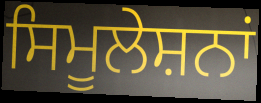
ਸਿਮੂਲੇਸ਼ਨਾਂ